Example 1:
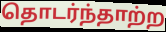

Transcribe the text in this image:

தொடர்ந்தாற்ற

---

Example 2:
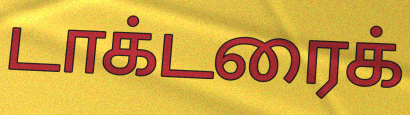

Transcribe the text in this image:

டாக்டரைக்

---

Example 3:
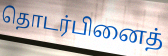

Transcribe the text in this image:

தொடர்பினைத்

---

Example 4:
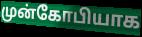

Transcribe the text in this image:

முன்கோபியாக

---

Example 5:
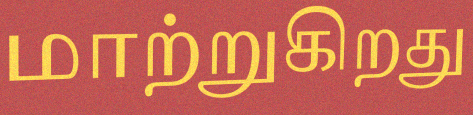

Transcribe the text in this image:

மாற்றுகிறது